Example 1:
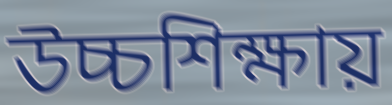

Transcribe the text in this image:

উচ্চশিক্ষায়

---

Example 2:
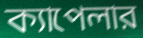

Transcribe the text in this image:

ক্যাপেলার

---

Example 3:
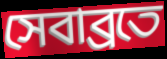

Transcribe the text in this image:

সেবাব্রতে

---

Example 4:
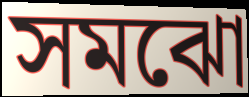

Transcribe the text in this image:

সমঝো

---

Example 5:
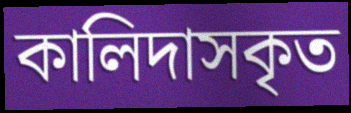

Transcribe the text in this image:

কালিদাসকৃত